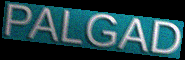
PALGAD